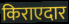
किराएदार